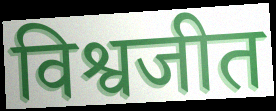
विश्वजीत